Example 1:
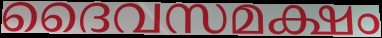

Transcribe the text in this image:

ദൈവസമക്ഷം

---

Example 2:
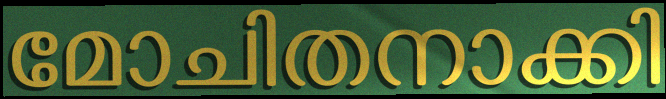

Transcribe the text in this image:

മോചിതനാക്കി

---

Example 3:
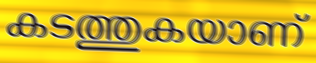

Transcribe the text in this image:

കടത്തുകയാണ്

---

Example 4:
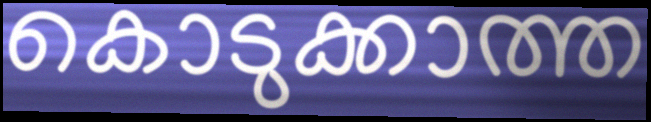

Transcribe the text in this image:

കൊടുക്കാത്ത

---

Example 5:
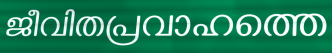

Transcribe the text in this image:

ജീവിതപ്രവാഹത്തെ